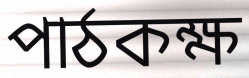
পাঠকক্ষ